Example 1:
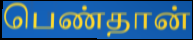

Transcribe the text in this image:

பெண்தான்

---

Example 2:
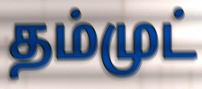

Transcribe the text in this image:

தம்முட்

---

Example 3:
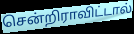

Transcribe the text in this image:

சென்றிராவிட்டால்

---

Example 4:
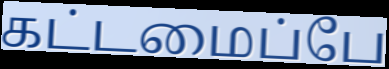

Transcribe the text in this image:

கட்டமைப்பே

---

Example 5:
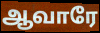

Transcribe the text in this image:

ஆவாரே